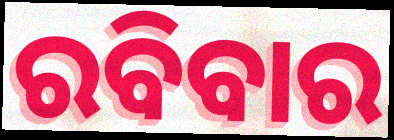
ରବିବାର